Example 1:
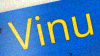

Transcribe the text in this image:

Vinu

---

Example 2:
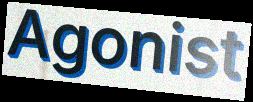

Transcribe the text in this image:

Agonist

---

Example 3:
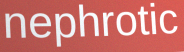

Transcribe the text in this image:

nephrotic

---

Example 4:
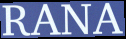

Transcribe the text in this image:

RANA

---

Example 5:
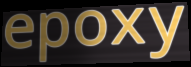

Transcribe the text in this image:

epoxy